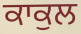
ਕਾਕੁਲ